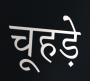
चूहड़े